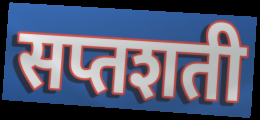
सप्तशती